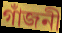
গাঁজনী